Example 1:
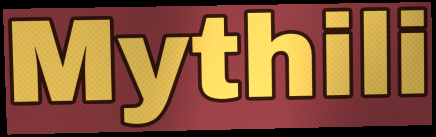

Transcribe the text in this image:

Mythili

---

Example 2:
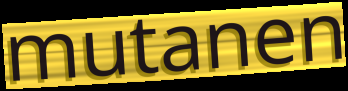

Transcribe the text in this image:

mutanen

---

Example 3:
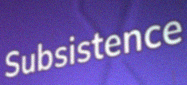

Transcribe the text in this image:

Subsistence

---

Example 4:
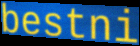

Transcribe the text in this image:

bestni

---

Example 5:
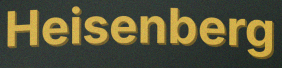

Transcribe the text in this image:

Heisenberg